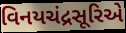
વિનયચંદ્રસૂરિએ